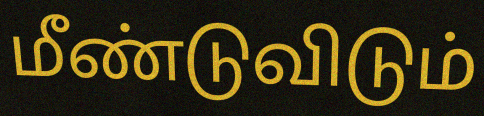
மீண்டுவிடும்